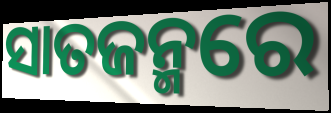
ସାତଜନ୍ମରେ